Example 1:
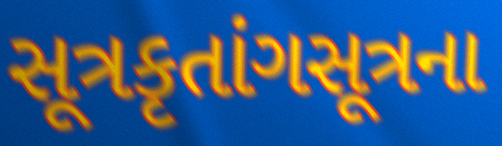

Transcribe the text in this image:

સૂત્રકૃતાંગસૂત્રના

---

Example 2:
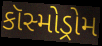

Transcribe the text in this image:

કૉસ્મોડ્રોમ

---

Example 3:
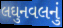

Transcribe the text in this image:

લઘુનવલનું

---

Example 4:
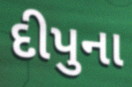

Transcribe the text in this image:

દીપુના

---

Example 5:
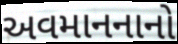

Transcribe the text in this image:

અવમાનનાનો